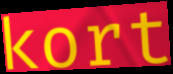
kort